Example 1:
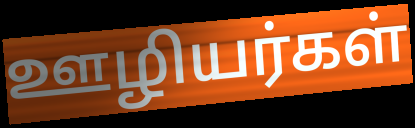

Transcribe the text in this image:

ஊழியர்கள்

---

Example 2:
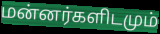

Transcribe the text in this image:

மன்னர்களிடமும்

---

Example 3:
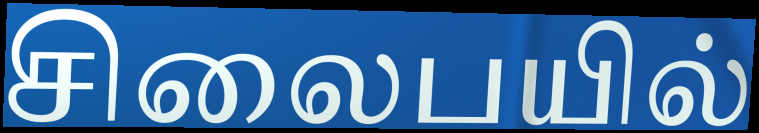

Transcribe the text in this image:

சிலைபயில்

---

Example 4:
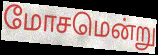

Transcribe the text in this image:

மோசமென்று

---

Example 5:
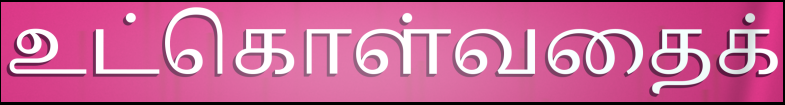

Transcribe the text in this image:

உட்கொள்வதைக்